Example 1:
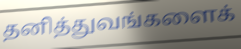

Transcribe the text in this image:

தனித்துவங்களைக்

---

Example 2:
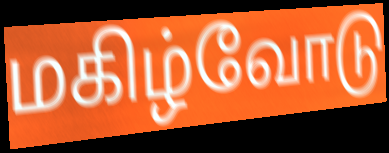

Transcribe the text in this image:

மகிழ்வோடு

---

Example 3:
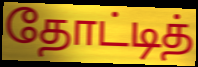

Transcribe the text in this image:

தோட்டித்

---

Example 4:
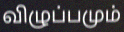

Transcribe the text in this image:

விழுப்பமும்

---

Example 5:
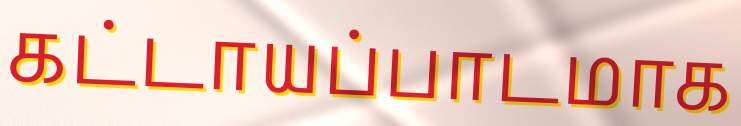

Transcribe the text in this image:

கட்டாயப்பாடமாக